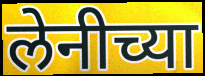
लेनीच्या